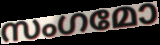
സംഗമോ